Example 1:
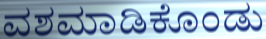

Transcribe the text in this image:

ವಶಮಾಡಿಕೊಂಡು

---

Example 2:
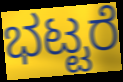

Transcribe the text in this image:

ಭಟ್ಟರೆ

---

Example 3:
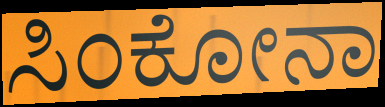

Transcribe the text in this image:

ಸಿಂಕೋನಾ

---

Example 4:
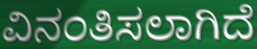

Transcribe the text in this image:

ವಿನಂತಿಸಲಾಗಿದೆ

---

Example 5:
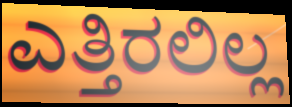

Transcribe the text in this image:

ಎತ್ತಿರಲಿಲ್ಲ